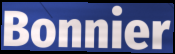
Bonnier